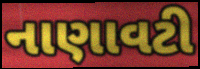
નાણાવટી